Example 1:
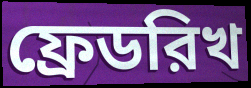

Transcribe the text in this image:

ফ্রেডরিখ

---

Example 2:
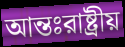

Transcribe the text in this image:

আন্তঃরাষ্ট্রীয়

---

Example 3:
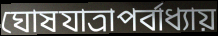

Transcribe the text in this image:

ঘোষযাত্রাপর্বাধ্যায়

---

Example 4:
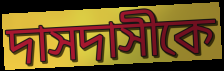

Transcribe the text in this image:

দাসদাসীকে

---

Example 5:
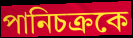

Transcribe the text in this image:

পানিচক্রকে